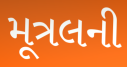
મૂત્રલની